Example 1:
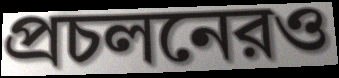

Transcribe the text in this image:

প্রচলনেরও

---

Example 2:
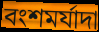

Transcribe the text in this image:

বংশমর্যাদা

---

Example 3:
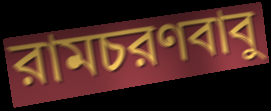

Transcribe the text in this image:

রামচরণবাবু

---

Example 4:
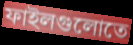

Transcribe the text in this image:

ফাইলগুলোতে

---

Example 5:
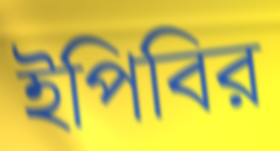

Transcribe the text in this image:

ইপিবির